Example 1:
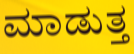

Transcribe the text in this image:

ಮಾಡುತ್ತ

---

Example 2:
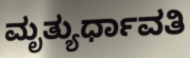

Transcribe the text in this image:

ಮೃತ್ಯುರ್ಧಾವತಿ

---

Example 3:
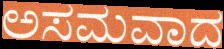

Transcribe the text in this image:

ಅಸಮವಾದ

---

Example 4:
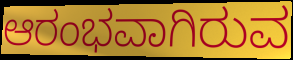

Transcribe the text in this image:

ಆರಂಭವಾಗಿರುವ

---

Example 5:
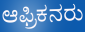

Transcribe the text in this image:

ಆಫ್ರಿಕನರು